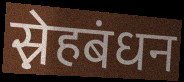
स्नेहबंधन